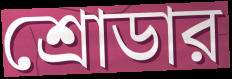
শ্রোডার